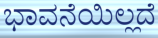
ಭಾವನೆಯಿಲ್ಲದೆ